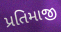
પ્રતિમાજી